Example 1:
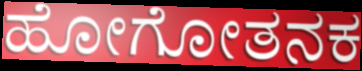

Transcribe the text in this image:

ಹೋಗೋತನಕ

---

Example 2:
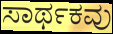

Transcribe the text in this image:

ಸಾರ್ಥಕವು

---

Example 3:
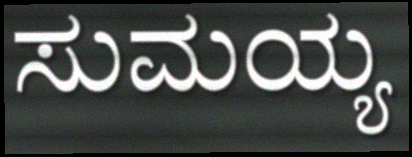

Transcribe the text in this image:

ಸುಮಯ್ಯ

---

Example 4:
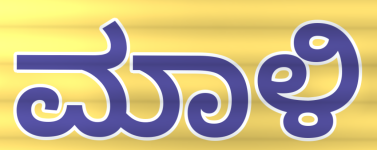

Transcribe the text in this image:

ಮಾಳಿ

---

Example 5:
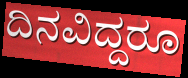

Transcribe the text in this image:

ದಿನವಿದ್ದರೂ